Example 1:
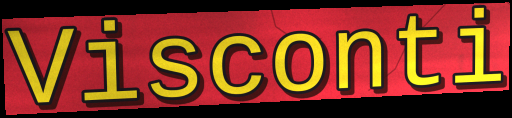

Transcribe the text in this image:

Visconti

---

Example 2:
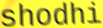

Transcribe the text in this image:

shodhi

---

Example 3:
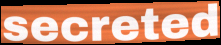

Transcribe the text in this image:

secreted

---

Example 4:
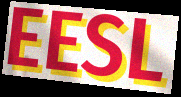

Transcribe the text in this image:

EESL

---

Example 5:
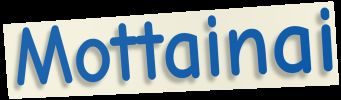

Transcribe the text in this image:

Mottainai